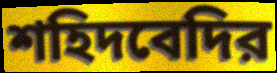
শহিদবেদির